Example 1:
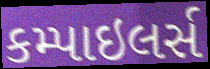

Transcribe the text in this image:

કમ્પાઇલર્સ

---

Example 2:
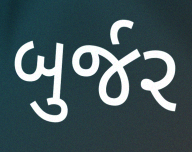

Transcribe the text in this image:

બુર્જર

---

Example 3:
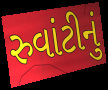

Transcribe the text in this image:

રુવાંટીનું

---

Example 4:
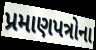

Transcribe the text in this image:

પ્રમાણપત્રોના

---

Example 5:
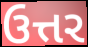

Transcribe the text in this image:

ઉત્તર